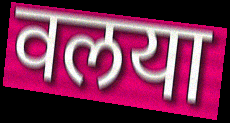
वलया